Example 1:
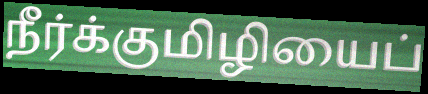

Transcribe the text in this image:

நீர்க்குமிழியைப்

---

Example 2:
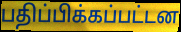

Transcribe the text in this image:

பதிப்பிக்கப்பட்டன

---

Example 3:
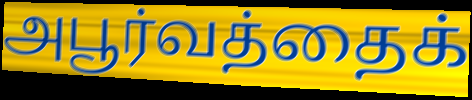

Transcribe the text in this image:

அபூர்வத்தைக்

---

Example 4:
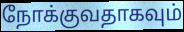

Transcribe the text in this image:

நோக்குவதாகவும்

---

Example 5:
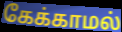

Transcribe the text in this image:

கேக்காமல்